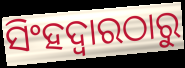
ସିଂହଦ୍ୱାରଠାରୁ